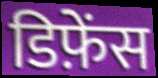
डिफ़ेंस